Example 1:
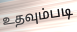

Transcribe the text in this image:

உதவும்படி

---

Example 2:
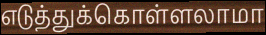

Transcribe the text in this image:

எடுத்துக்கொள்ளலாமா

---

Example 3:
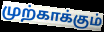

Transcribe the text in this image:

முற்காக்கும்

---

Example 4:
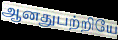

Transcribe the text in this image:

ஆனதுபற்றியே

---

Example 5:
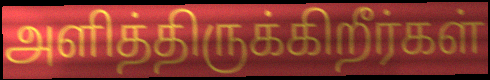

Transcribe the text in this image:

அளித்திருக்கிறீர்கள்